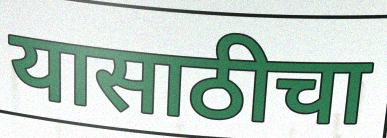
यासाठीचा